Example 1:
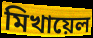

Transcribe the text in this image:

মিখায়েল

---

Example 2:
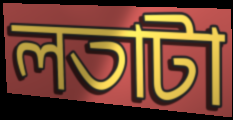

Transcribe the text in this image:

লতাটা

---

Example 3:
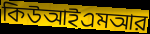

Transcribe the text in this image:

কিউআইএমআর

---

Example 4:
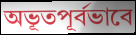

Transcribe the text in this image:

অভূতপূর্বভাবে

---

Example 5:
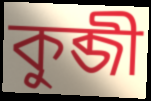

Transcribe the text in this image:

কুব্জী